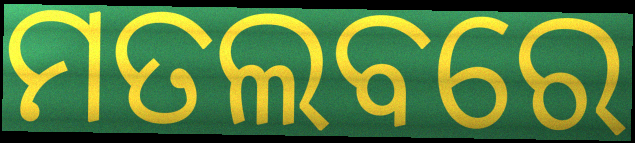
ମତଲବରେ